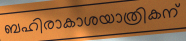
ബഹിരാകാശയാത്രികന്